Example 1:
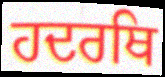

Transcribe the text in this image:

ਹਦਰਥਿ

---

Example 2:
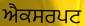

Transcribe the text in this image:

ਐਕਸਰਪਟ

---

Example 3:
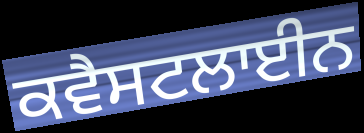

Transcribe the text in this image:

ਕਵੈਸਟਲਾਈਨ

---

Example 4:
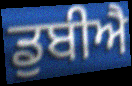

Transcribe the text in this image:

ਡੁਬੀਐ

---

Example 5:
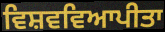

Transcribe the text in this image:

ਵਿਸ਼ਵਵਿਆਪੀਤਾ